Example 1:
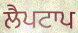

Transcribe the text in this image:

ਲੈਪਟਾਪ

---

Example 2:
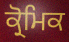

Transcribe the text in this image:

ਕ੍ਰੋਮਿਕ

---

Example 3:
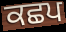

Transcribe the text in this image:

ਕਛਪ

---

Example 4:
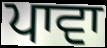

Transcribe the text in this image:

ਪਾਵਾ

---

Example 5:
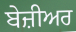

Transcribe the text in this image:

ਬੇਜ਼ੀਅਰ